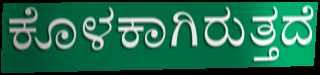
ಕೊಳಕಾಗಿರುತ್ತದೆ